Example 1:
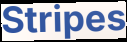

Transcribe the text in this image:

Stripes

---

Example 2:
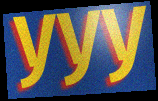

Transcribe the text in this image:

yyy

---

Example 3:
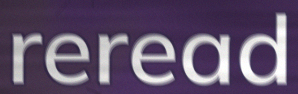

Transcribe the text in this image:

reread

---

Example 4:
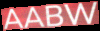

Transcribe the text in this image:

AABW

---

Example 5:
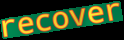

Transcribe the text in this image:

recover